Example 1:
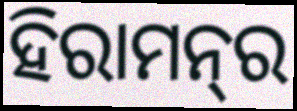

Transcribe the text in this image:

ହିରାମନ୍‍ର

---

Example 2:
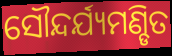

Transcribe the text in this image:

ସୌନ୍ଦର୍ଯ୍ୟମଣ୍ଡିତ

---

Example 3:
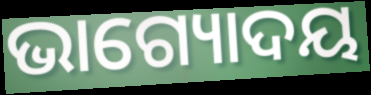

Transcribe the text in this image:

ଭାଗ୍ୟୋଦୟ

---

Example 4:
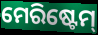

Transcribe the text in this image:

ମେରିଷ୍ଟେମ୍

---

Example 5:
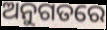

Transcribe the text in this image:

ଅନୁଗତରେ